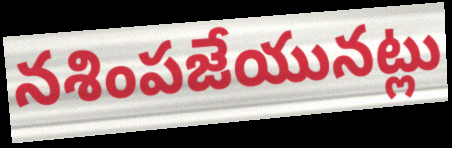
నశింపజేయునట్లు